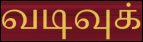
வடிவுக்